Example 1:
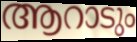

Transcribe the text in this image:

ആറാടും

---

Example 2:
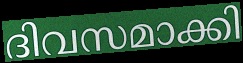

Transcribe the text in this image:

ദിവസമാക്കി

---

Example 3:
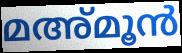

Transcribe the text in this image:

മഅ്മൂൻ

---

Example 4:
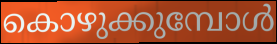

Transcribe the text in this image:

കൊഴുക്കുമ്പോൾ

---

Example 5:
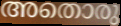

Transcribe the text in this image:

അതൊരു